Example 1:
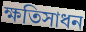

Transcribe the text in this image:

ক্ষতিসাধন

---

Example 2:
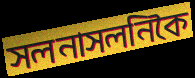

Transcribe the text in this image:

সলনাসলনিকৈ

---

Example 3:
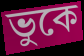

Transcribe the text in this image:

ভুকে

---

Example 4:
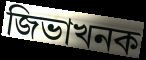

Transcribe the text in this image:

জিভাখনক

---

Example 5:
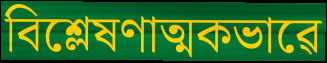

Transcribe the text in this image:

বিশ্লেষণাত্মকভাৱে